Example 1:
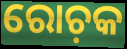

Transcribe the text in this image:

ରୋଚ଼କ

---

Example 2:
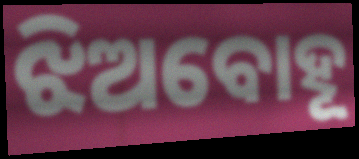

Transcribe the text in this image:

ଝିଅବୋହୂ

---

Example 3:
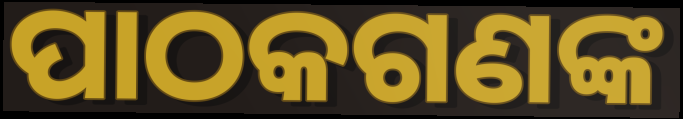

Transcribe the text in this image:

ପାଠକଗଣଙ୍କ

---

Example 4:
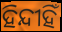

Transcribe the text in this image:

ହିନ୍ଦୀହିଁ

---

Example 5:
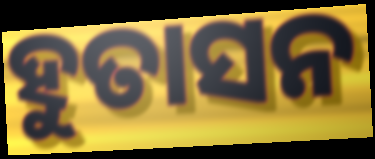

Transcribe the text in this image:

ହୁତାସନ